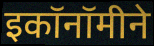
इकॉनॉमीने